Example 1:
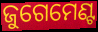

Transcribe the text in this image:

ଜୁଗେମେଣ୍ଟ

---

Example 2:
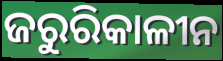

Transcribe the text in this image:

ଜରୁରିକାଳୀନ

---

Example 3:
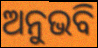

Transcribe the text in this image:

ଅନୁଭବି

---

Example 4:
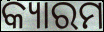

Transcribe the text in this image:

କ୍ୟାରମ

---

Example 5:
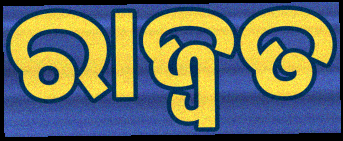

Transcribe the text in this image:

ରାଜ୍ୱତ